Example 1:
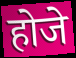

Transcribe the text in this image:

होजे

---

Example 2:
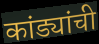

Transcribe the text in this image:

कांड्यांची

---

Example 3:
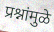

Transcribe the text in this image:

प्रश्नांमुळे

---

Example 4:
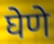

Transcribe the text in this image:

घेणे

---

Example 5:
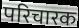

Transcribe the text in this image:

परिचारक